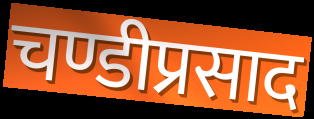
चण्डीप्रसाद